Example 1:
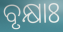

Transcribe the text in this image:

ବୃକ୍ଷାଃ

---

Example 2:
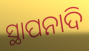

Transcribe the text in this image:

ସ୍ଥାପନାଦି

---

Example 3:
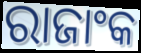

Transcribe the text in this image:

ରାଜାଂକ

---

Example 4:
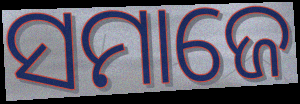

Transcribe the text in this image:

ସମାଜେ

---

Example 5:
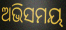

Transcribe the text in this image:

ଅଭିସମୟ